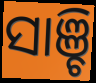
ସାଞ୍ଚି